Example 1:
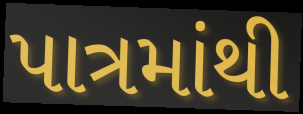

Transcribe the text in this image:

પાત્રમાંથી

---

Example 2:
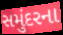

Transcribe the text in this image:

સમુંદરના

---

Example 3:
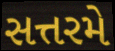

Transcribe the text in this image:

સત્તરમે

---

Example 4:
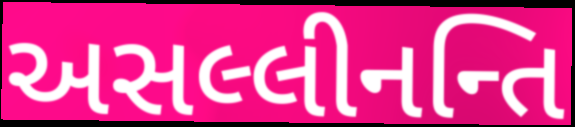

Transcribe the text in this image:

અસલ્લીનન્તિ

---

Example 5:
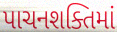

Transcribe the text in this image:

પાચનશક્તિમાં